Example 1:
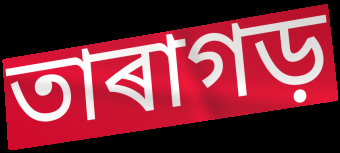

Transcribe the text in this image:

তাৰাগড়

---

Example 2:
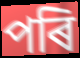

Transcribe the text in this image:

পৰি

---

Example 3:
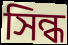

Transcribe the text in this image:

সিন্ধ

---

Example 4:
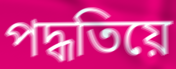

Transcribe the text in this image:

পদ্ধতিয়ে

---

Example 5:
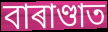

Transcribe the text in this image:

বাৰাণ্ডাত